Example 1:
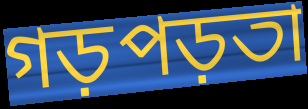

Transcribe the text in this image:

গড়পড়তা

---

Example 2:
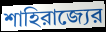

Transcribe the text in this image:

শাহিরাজ্যের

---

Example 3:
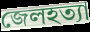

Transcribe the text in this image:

জেলহত্যা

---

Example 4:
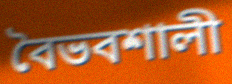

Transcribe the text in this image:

বৈভবশালী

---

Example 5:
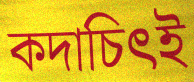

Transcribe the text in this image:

কদাচিৎই